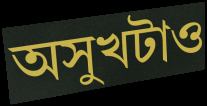
অসুখটাও